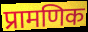
प्रामणिक